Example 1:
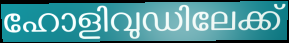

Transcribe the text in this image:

ഹോളിവുഡിലേക്ക്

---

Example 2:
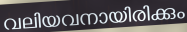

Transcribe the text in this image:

വലിയവനായിരിക്കും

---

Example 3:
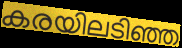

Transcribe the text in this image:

കരയിലടിഞ്ഞ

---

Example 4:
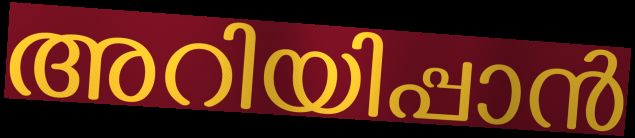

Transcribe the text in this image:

അറിയിപ്പാൻ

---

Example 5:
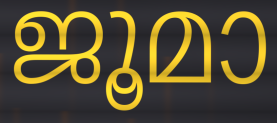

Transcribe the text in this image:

ജൂമാ